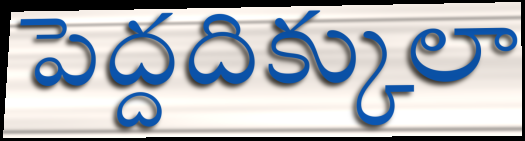
పెద్దదిక్కులా